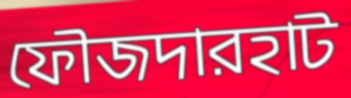
ফৌজদারহাট